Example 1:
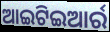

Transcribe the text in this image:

ଆଇଟିଇଆର୍ର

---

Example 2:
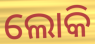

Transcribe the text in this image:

ଲୋକି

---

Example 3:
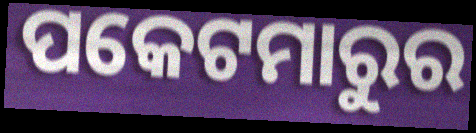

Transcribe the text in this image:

ପକେଟମାରୁର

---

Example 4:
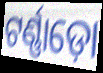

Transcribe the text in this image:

ଟର୍ଣ୍ଣାଡ଼ୋ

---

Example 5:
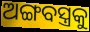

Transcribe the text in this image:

ଅଙ୍ଗବସ୍ତ୍ରକୁ